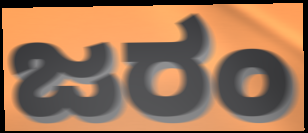
ಜರಂ